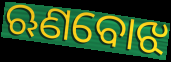
ଋଣବୋଝ